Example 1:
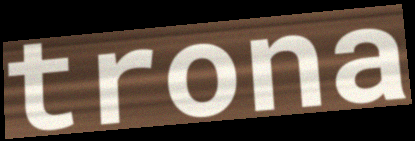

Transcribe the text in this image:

trona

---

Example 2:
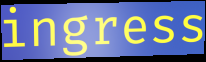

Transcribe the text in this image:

ingress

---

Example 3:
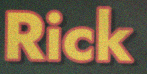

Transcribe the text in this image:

Rick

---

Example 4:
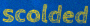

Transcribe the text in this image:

scolded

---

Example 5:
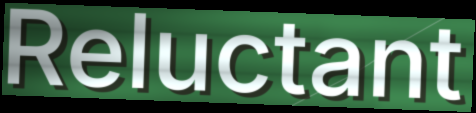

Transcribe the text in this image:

Reluctant